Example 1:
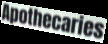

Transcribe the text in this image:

Apothecaries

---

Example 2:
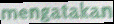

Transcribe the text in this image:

mengatakan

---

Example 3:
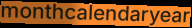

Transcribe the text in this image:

monthcalendaryear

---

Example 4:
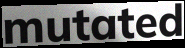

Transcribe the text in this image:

mutated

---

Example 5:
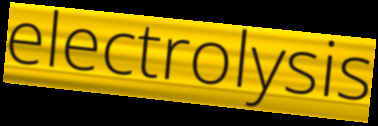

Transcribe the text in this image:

electrolysis